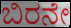
ಬಿರನೇ